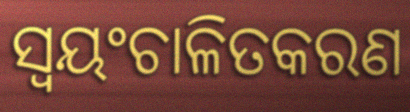
ସ୍ୱୟଂଚାଳିତକରଣ